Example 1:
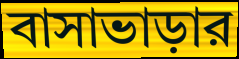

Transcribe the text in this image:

বাসাভাড়ার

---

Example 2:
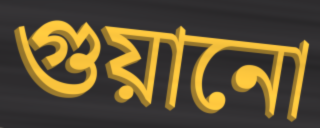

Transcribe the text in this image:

গুয়ানো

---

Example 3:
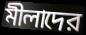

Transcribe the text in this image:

মীলাদের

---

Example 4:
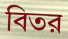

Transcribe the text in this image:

বিতর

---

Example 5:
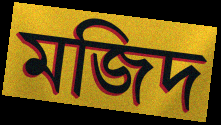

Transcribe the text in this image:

মজিদ